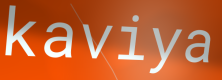
kaviya